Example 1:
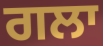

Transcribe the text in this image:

ਗਲਾ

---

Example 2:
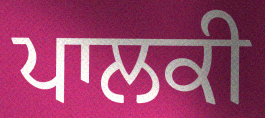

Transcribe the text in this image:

ਪਾਲਕੀ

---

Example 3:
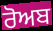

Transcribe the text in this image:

ਰੋਅਬ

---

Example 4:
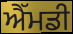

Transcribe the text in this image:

ਐੱਮਡੀ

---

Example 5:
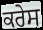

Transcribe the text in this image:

ਕਰੇਸ